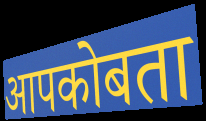
आपकोबता